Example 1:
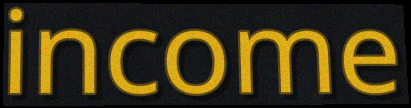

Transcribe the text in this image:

income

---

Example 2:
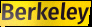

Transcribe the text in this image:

Berkeley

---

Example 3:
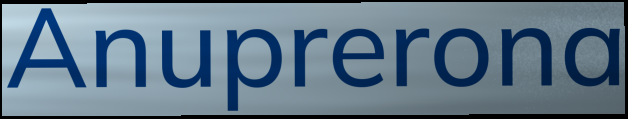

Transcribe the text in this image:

Anuprerona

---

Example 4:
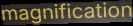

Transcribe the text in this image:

magnification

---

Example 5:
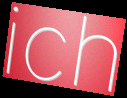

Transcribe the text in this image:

ich